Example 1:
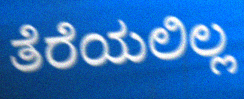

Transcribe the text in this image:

ತೆರೆಯಲಿಲ್ಲ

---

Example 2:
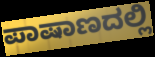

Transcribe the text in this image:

ಪಾಷಾಣದಲ್ಲಿ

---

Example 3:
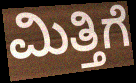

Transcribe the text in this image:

ಮಿತ್ತಿಗೆ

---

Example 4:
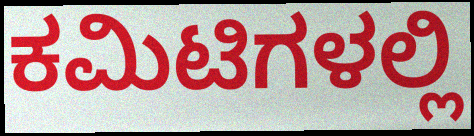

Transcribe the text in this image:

ಕಮಿಟಿಗಳಲ್ಲಿ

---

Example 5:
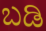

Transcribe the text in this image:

ಬಡಿ